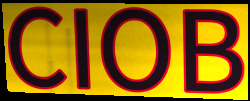
CIOB